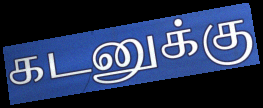
கடனுக்கு